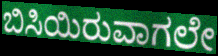
ಬಿಸಿಯಿರುವಾಗಲೇ